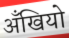
अँखियो